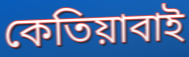
কেতিয়াবাই